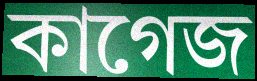
কাগেজ